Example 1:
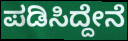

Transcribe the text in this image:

ಪಡಿಸಿದ್ದೇನೆ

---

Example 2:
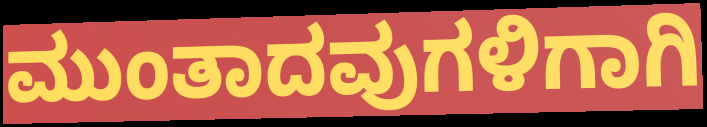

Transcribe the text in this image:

ಮುಂತಾದವುಗಳಿಗಾಗಿ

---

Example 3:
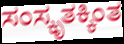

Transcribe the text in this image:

ಸಂಸ್ಕೃತಕ್ಕಿಂತ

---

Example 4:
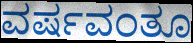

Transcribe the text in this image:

ವರ್ಷವಂತೂ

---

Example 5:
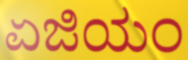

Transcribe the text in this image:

ಏಜಿಯಂ